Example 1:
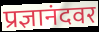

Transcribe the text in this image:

प्रज्ञानंदवर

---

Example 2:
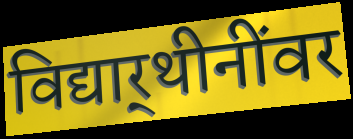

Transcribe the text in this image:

विद्यार्थीनींवर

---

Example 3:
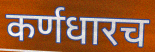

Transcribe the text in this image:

कर्णधारच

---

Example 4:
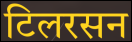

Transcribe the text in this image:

टिलरसन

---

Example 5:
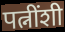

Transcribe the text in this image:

पत्नींशी